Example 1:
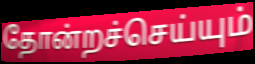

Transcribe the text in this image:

தோன்றச்செய்யும்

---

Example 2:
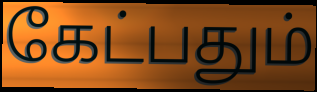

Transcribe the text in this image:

கேட்பதும்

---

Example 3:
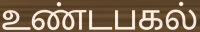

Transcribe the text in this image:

உண்டபகல்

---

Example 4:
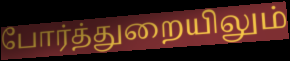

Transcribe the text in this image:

போர்த்துறையிலும்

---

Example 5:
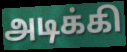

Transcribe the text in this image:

அடிக்கி